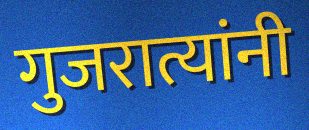
गुजरात्यांनी